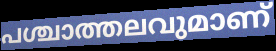
പശ്ചാത്തലവുമാണ്